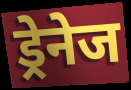
ड्रेनेज